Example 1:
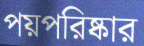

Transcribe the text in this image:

পয়পরিষ্কার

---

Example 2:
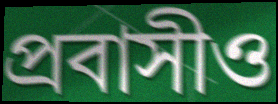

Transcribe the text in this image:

প্রবাসীও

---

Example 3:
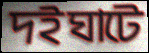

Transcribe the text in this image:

দইঘাটে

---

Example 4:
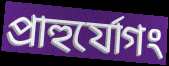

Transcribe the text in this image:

প্রাহুর্যোগং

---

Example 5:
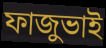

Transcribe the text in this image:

ফাজুভাই